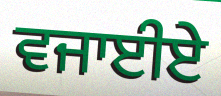
ਵਜਾਈਏ